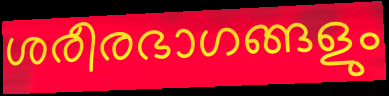
ശരീരഭാഗങ്ങളും